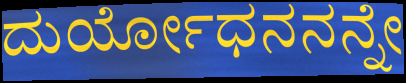
ದುರ್ಯೋಧನನನ್ನೇ